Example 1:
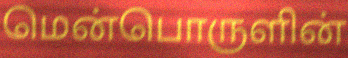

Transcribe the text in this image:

மென்பொருளின்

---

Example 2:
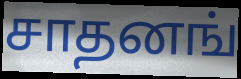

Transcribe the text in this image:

சாதனங்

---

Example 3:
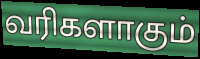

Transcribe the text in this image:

வரிகளாகும்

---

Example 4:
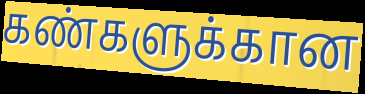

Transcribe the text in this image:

கண்களுக்கான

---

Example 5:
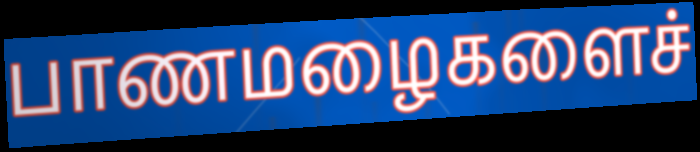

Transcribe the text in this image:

பாணமழைகளைச்